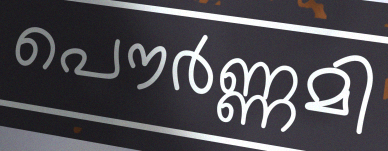
പൌർണ്ണമി